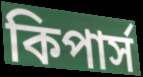
কিপার্স